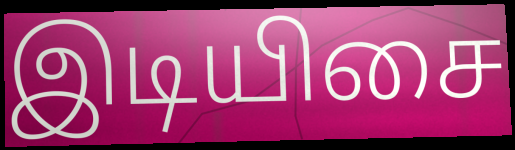
இடியிசை